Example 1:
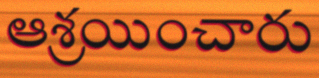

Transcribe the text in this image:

ఆశ్రయించారు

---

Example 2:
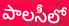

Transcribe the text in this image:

పాలసీలో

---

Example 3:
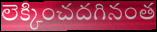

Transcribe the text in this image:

లెక్కించదగినంత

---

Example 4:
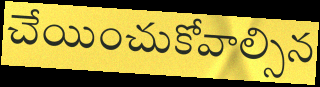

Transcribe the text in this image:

చేయించుకోవాల్సిన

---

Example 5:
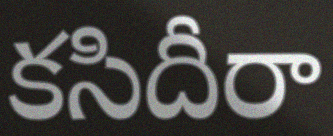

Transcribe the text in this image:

కసిదీరా